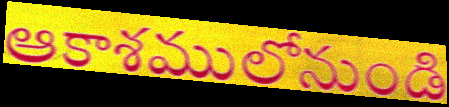
ఆకాశములోనుండి